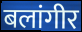
बलांगीर